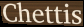
Chettis